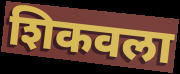
शिकवला